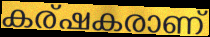
കര്ഷകരാണ്